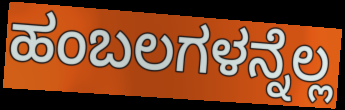
ಹಂಬಲಗಳನ್ನೆಲ್ಲ